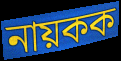
নায়কক